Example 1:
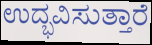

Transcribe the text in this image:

ಉದ್ಭವಿಸುತ್ತಾರೆ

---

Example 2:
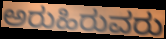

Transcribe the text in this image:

ಅರುಹಿರುವರು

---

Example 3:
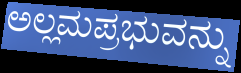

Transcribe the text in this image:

ಅಲ್ಲಮಪ್ರಭುವನ್ನು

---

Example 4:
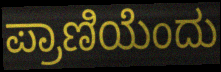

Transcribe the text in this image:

ಪ್ರಾಣಿಯೆಂದು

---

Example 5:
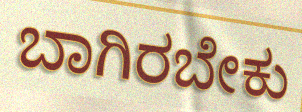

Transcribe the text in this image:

ಬಾಗಿರಬೇಕು